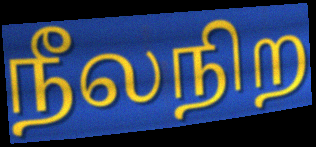
நீலநிற